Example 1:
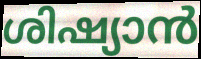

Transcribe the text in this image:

ശിഷ്യാൻ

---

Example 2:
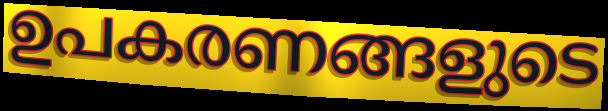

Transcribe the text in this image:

ഉപകരണങ്ങളുടെ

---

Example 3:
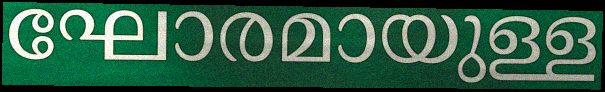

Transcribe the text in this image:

ഘോരമായുള്ള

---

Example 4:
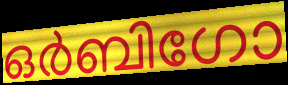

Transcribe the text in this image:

ഒർബിഗോ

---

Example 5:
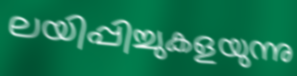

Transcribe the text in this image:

ലയിപ്പിച്ചുകളയുന്നു